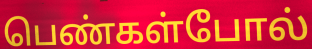
பெண்கள்போல்